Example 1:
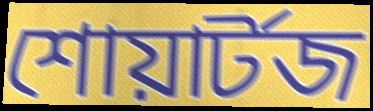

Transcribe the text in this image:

শোয়ার্টজ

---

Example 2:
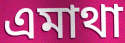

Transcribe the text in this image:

এমাথা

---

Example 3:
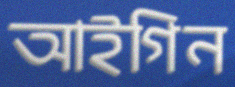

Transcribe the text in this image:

আইগিন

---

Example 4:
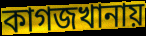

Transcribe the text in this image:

কাগজখানায়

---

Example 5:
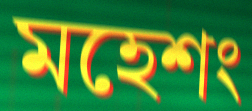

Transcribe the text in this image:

মহেশং